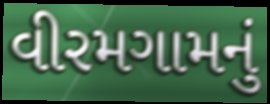
વીરમગામનું